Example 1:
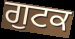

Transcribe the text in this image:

ਗੁਟਕ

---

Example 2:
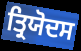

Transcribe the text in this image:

ਤ੍ਰਿਯੋਦਸ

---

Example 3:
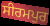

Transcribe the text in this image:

ਸੀਰਮਪੁਰ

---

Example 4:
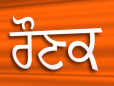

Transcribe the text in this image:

ਰੌਣਕ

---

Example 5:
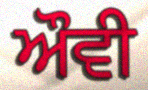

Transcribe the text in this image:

ਔਵੀ